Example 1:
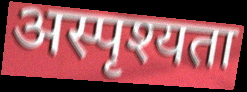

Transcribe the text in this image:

अस्पृश्यता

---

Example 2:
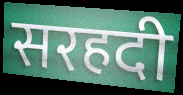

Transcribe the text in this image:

सरहदी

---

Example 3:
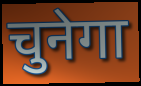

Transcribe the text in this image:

चुनेगा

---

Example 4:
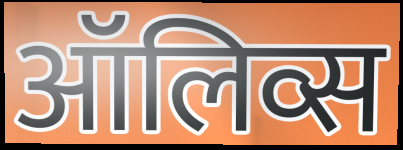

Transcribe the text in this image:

ऑलिव्स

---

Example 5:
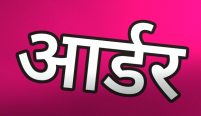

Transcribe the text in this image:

आर्डर